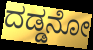
ದಡ್ಡನೋ